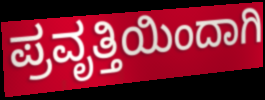
ಪ್ರವೃತ್ತಿಯಿಂದಾಗಿ